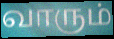
வாரும்